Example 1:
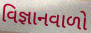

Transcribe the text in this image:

વિજ્ઞાનવાળો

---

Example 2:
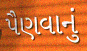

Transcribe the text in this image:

પૈણવાનું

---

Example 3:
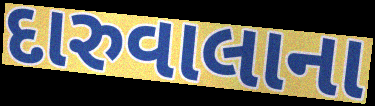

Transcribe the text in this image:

દારુવાલાના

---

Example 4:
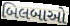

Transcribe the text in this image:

બિલબાઓ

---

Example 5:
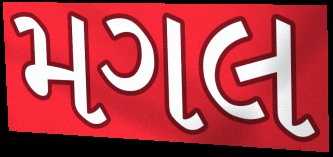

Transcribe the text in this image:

મગલ